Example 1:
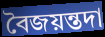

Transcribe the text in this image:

বৈজয়ন্তদা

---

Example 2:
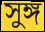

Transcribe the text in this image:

সুঙ্গ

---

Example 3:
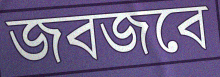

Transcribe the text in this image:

জবজবে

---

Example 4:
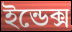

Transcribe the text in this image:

ইন্ডেক্স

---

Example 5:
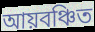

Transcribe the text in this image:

আয়বঞ্চিত